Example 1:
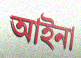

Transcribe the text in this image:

আইনা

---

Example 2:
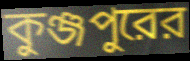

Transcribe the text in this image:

কুঞ্জপুরের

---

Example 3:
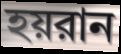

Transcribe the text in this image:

হয়রান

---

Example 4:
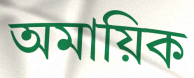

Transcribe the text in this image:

অমায়িক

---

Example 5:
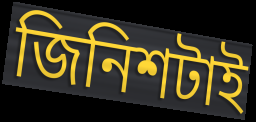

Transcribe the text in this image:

জিনিশটাই